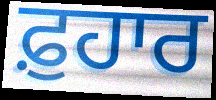
ਫ਼ੁਹਾਰ